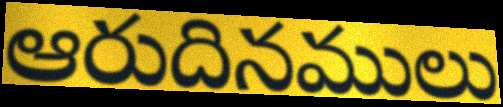
ఆరుదినములు